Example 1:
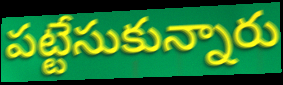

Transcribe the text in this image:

పట్టేసుకున్నారు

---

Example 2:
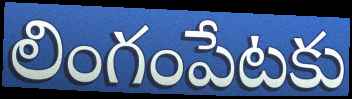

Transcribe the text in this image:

లింగంపేటకు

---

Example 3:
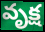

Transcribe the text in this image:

వృక్ష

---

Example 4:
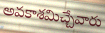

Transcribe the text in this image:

అవకాశమిచ్చేవారు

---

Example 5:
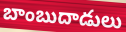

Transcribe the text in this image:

బాంబుదాడులు